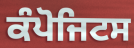
ਕੰਪੋਜਿਟਸ